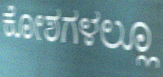
ಕೋಶಗಳಲ್ಲೂ